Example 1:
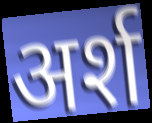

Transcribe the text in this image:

अर्श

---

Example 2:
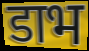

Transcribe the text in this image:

डाभ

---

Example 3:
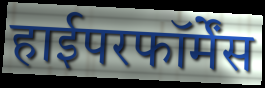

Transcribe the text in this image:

हाईपरफॉर्मेंस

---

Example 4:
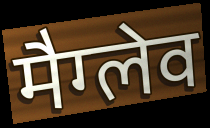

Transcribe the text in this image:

मैग्लेव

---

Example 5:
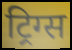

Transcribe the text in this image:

ट्रिग्स